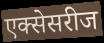
एक्सेसरीज